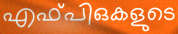
എഫ്പിഒകളുടെ